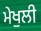
ਮੇਖੁਲੀ